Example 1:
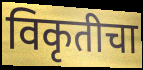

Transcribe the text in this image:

विकृतीचा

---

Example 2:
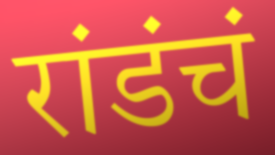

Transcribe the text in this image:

रांडंचं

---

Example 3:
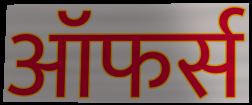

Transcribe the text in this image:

ऑफर्स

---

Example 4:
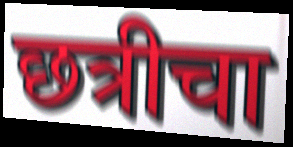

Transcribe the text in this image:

छत्रीचा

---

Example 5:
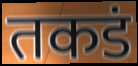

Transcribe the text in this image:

तकडं